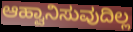
ಆಹ್ವಾನಿಸುವುದಿಲ್ಲ